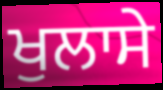
ਖੁਲਾਸੇ